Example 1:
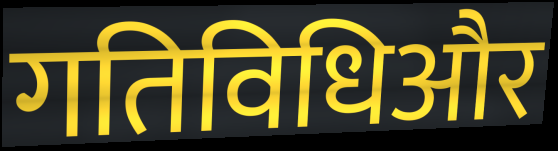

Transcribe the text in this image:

गतिविधिऔर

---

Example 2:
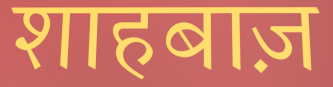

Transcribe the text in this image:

शाहबाज़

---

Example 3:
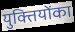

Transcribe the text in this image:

युक्तियोंका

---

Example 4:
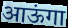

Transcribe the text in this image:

आऊंगा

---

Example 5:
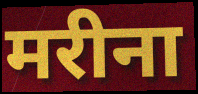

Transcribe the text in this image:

मरीना